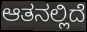
ಆತನಲ್ಲಿದೆ